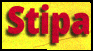
Stipa